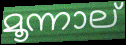
മൂന്നാല്